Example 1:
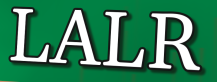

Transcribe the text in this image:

LALR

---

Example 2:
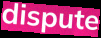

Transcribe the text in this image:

dispute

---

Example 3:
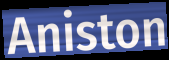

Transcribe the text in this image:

Aniston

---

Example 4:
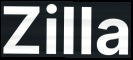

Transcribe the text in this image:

Zilla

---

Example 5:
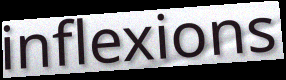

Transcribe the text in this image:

inflexions